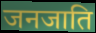
जनजाति